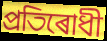
প্ৰতিৰোধী